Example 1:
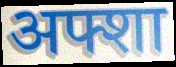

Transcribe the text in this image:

अफ्शा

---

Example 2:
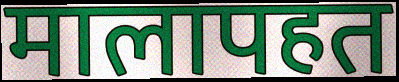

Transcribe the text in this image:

मालापहत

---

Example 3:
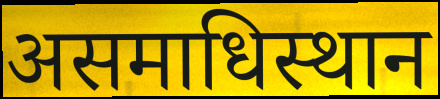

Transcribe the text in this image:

असमाधिस्थान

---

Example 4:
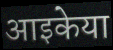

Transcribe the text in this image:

आइकेया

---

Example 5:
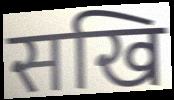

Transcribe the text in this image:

सखि